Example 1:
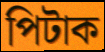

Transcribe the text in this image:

পিটাক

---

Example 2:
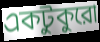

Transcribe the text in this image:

একটুকুরো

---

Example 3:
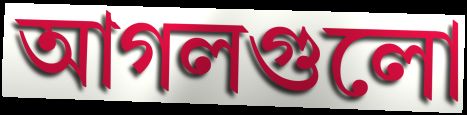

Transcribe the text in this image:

আগলগুলো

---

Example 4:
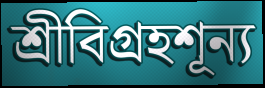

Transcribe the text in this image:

শ্রীবিগ্রহশূন্য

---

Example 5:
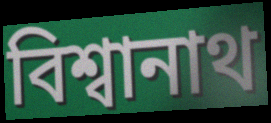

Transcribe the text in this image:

বিশ্বানাথ